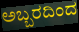
ಅಬ್ಬರದಿಂದ